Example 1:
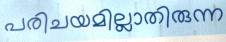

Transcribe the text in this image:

പരിചയമില്ലാതിരുന്ന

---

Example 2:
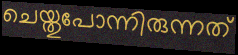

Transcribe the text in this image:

ചെയ്തുപോന്നിരുന്നത്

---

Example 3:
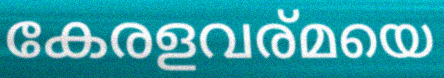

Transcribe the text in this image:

കേരളവര്മയെ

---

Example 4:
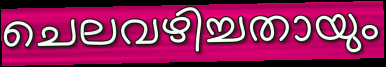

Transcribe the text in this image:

ചെലവഴിച്ചതായും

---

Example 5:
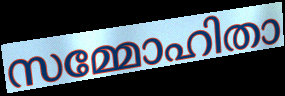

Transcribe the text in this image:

സമ്മോഹിതാ